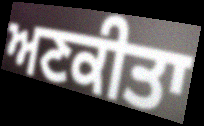
ਅਣਕੀਤਾ